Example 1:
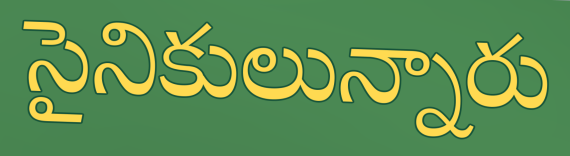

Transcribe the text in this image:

సైనికులున్నారు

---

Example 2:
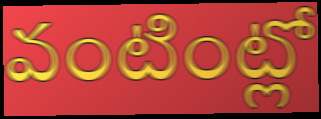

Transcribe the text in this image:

వంటింట్లో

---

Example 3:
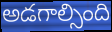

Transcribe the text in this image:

అడగాల్సింది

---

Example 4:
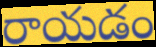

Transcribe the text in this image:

రాయడం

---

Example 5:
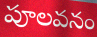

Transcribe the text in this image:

పూలవనం